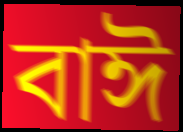
বাঈ